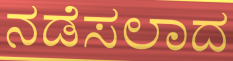
ನಡೆಸಲಾದ